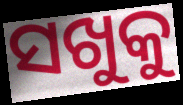
ସଖୁକୁ